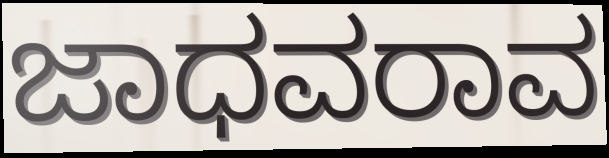
ಜಾಧವರಾವ